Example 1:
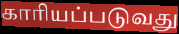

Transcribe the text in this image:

காரியப்படுவது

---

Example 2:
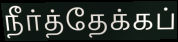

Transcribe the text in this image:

நீர்த்தேக்கப்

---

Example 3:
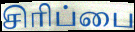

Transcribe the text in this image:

சிரிப்பை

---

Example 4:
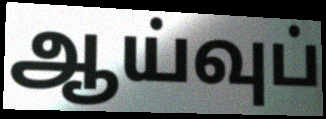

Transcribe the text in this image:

ஆய்வுப்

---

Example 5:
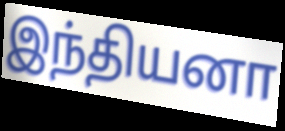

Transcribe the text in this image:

இந்தியனா